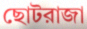
ছোটরাজা